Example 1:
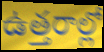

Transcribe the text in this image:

ఉత్తరాల్లో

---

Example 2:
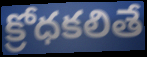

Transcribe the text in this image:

క్రోధకలితే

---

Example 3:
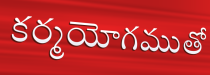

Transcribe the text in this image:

కర్మయోగముతో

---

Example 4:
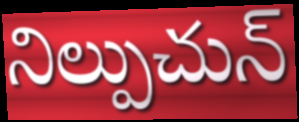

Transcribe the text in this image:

నిల్పుచున్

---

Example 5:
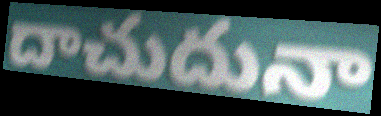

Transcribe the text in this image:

దాచుదునా